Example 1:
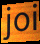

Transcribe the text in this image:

joi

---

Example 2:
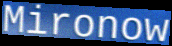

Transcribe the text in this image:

Mironow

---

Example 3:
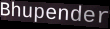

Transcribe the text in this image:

Bhupender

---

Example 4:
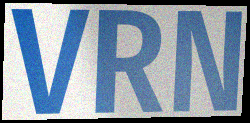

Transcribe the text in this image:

VRN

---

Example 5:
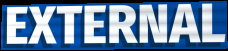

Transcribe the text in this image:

EXTERNAL